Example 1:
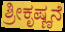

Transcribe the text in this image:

ಶ್ರೀಕೃಷ್ಣನೆ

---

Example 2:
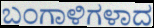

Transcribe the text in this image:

ಬಂಗಾಳಿಗಳಾದ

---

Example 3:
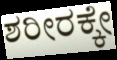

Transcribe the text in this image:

ಶರೀರಕ್ಕೇ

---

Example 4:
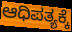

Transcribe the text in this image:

ಆಧಿಪತ್ಯಕ್ಕೆ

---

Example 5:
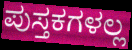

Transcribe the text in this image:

ಪುಸ್ತಕಗಳಲ್ಲ